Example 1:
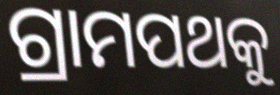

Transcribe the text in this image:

ଗ୍ରାମପଥକୁ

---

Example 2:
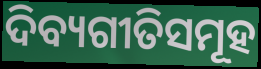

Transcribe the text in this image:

ଦିବ୍ୟଗୀତିସମୂହ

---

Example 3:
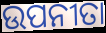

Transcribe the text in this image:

ଉପନୀତା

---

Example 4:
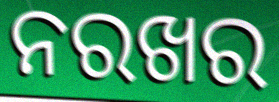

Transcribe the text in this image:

ନରଖର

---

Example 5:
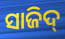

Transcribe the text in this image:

ସାଜିଦ୍